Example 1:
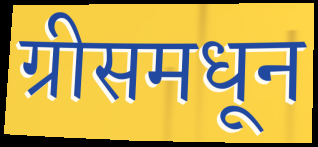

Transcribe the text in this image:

ग्रीसमधून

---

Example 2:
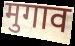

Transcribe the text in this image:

मुगाव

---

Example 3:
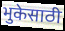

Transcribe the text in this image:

भुकेसाठी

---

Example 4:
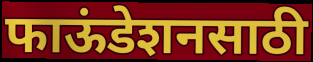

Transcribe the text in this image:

फाऊंडेशनसाठी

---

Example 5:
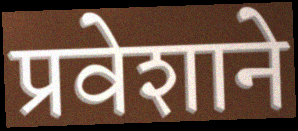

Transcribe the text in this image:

प्रवेशाने